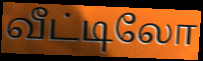
வீட்டிலோ